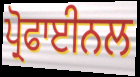
ਪ੍ਰੋਫਾਈਨਲ